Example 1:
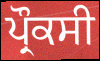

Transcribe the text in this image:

ਪ੍ਰੌਕਸੀ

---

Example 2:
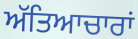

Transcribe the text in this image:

ਅੱਤਿਆਚਾਰਾਂ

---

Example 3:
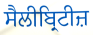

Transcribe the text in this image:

ਸੈਲੀਬ੍ਰਿਟੀਜ਼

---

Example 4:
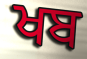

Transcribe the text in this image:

ਖਬ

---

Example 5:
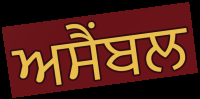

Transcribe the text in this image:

ਅਸੈਂਬਲ